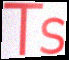
Ts